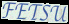
FETSU